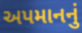
અપમાનનું